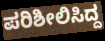
ಪರಿಶೀಲಿಸಿದ್ದ